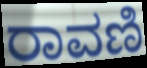
ರಾವಣಿ